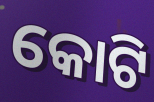
କୋଟି